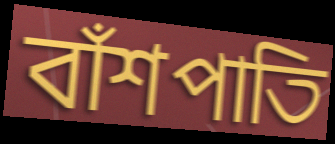
বাঁশপাতি